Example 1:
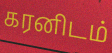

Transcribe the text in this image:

கரனிடம்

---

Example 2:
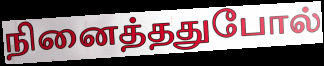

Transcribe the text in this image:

நினைத்ததுபோல்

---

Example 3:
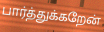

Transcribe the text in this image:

பார்த்துக்கறேன்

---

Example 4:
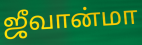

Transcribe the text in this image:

ஜீவான்மா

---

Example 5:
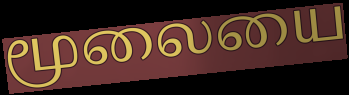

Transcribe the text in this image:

மூலையை